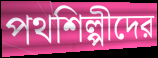
পথশিল্পীদের